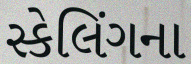
સ્કેલિંગના